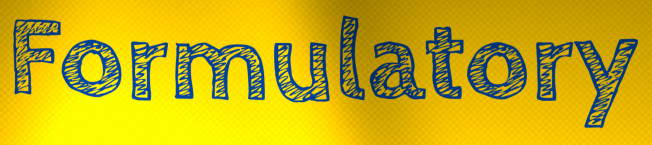
Formulatory